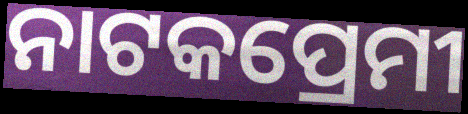
ନାଟକପ୍ରେମୀ